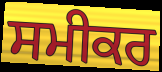
ਸਮੀਕਰ